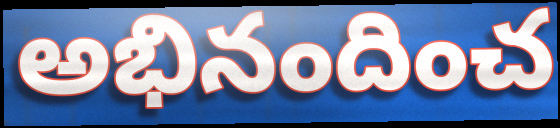
అభినందించ